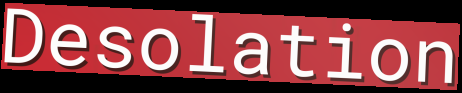
Desolation